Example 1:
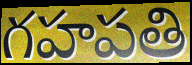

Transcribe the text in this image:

గహపతి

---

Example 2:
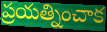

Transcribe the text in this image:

ప్రయత్నించాక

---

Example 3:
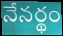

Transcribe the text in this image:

నేనర్థం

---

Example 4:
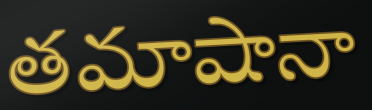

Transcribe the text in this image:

తమాషానా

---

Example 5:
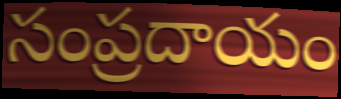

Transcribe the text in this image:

సంప్రదాయం